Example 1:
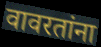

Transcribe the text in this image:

वावरतांना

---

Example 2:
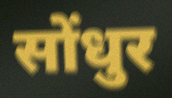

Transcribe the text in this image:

सोंधुर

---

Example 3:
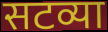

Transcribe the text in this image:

सटव्या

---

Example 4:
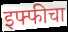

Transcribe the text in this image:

इफ्फीचा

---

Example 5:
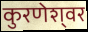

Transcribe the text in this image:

कुरणेश्वर